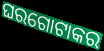
ଘରଗୋଟାକର